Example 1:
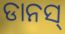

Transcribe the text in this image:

ଡାନସ୍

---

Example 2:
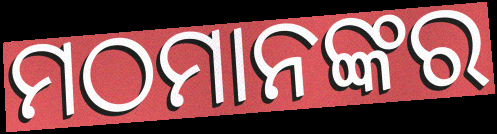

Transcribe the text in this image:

ମଠମାନଙ୍କର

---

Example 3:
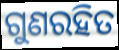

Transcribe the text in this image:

ଗୁଣରହିତ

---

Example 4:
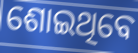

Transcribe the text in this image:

ଶୋଇଥିବେ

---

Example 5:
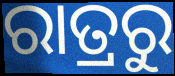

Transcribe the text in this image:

ରାତ୍ରରୁ